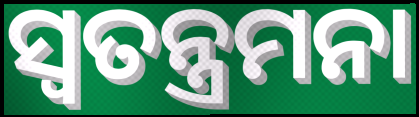
ସ୍ୱତନ୍ତ୍ରମନା